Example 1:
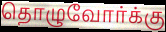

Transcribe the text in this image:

தொழுவோர்க்கு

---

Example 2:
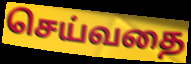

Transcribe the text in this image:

செய்வதை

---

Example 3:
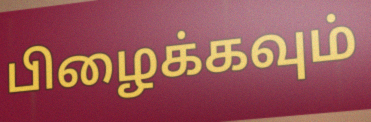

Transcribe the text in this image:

பிழைக்கவும்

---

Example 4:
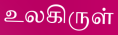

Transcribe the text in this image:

உலகிருள்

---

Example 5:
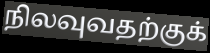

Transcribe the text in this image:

நிலவுவதற்குக்